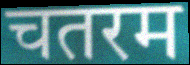
चतरम